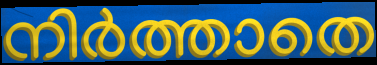
നിർത്താതെ